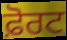
ਫ਼ੋਰਟ